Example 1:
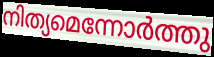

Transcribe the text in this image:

നിത്യമെന്നോർത്തു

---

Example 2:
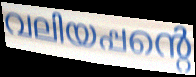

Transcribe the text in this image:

വലിയപ്പന്റെ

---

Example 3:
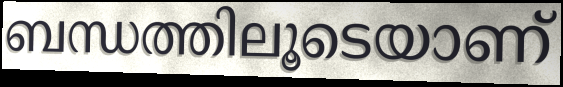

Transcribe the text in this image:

ബന്ധത്തിലൂടെയാണ്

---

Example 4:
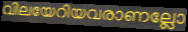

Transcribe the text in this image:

വിലയേറിയവരാണല്ലോ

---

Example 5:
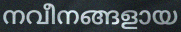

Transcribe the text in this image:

നവീനങ്ങളായ